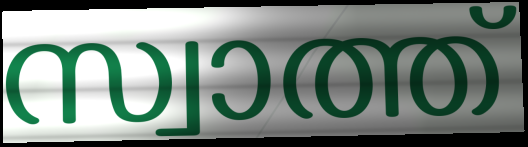
സ്വാത്ത്